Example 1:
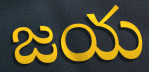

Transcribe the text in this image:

జయ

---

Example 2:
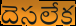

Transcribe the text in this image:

దెసలేక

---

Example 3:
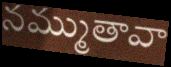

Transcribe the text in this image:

నమ్ముతావా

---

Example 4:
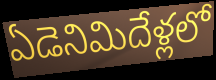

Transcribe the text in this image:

ఏడెనిమిదేళ్లలో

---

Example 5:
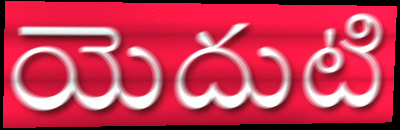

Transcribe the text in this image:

యెదుటి